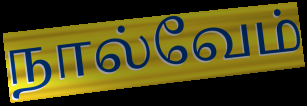
நால்வேம்